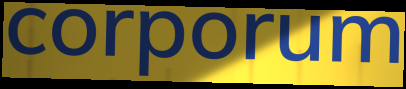
corporum